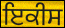
ਇਕੀਸ